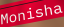
Monisha